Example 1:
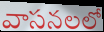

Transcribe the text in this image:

వాసనలలో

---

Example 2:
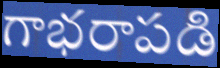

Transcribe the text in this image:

గాభరాపడి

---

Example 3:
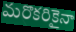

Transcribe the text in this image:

మరొకరికైనా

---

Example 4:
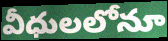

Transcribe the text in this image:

వీధులలోనూ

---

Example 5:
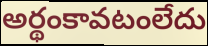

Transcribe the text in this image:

అర్థంకావటంలేదు